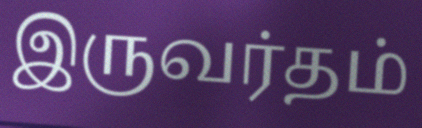
இருவர்தம்